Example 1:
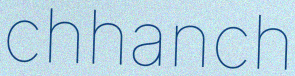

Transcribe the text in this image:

chhanch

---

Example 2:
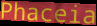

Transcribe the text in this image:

Phaceia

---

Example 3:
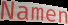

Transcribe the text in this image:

Namen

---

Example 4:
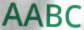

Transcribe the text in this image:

AABC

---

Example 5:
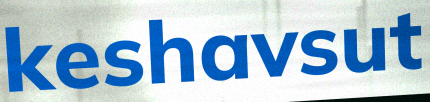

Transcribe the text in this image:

keshavsut